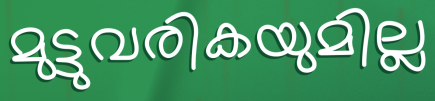
മുട്ടുവരികയുമില്ല